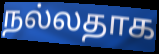
நல்லதாக